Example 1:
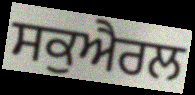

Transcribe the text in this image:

ਸਕੁਐਰਲ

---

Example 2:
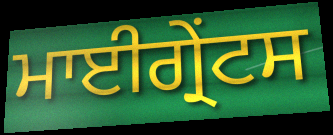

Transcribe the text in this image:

ਮਾਈਗ੍ਰੇਂਟਸ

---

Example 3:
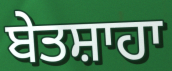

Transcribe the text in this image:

ਬੇਤਸ਼ਾਹਾ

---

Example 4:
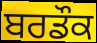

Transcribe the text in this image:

ਬਰਡੌਕ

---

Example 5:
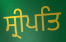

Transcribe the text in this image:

ਸ੍ਰੀਪਤਿ